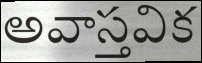
అవాస్తవిక